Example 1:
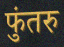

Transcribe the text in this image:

फुंतरु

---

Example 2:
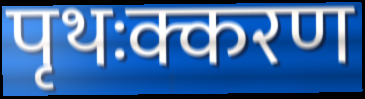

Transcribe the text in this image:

पृथःक्करण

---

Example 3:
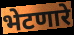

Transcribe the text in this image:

भेटणारे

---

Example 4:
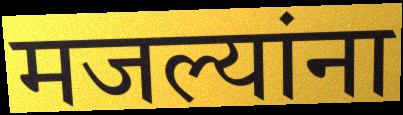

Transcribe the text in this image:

मजल्यांना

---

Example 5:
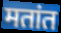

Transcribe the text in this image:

मतांत